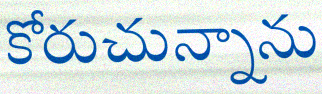
కోరుచున్నాను